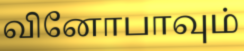
வினோபாவும்